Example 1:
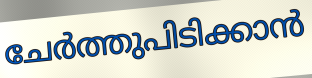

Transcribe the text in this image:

ചേർത്തുപിടിക്കാൻ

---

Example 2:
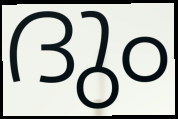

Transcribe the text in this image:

ദും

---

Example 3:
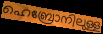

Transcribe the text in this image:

ഹെബ്രോനിലുള്ള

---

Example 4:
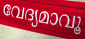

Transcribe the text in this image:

വേദ്യമാവൂ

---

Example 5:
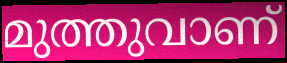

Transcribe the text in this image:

മുത്തുവാണ്